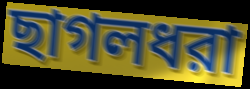
ছাগলধরা